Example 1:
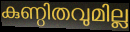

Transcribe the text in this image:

കുണ്ഠിതവുമില്ല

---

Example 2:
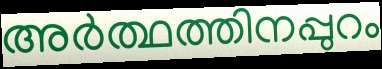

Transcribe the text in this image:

അർത്ഥത്തിനപ്പുറം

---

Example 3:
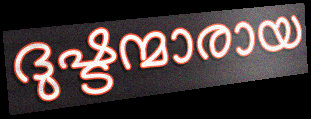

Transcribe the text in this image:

ദുഷ്ടന്മാരായ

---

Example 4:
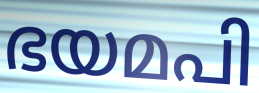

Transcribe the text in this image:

ഭയമപി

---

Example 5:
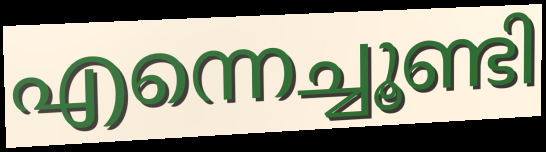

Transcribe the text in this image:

എന്നെച്ചൂണ്ടി